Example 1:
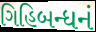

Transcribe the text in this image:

ગિહિબન્ધનં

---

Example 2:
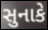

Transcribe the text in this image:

સુનાકે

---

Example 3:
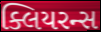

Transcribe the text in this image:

ક્લિયરન્સ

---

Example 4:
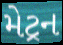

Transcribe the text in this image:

મેટ્રન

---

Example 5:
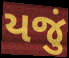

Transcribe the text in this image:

યજું